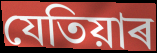
যেতিয়াৰ